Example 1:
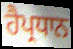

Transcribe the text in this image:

ਹੈਪ੍ਰਧਾਨ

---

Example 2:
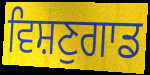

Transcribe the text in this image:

ਵਿਸ਼ਣੁਗਾਡ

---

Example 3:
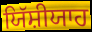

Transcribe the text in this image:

ਯਿੱਸ਼ੀਯਾਹ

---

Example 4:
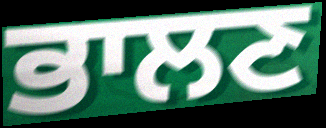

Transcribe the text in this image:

ਭਾਲਣ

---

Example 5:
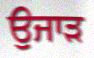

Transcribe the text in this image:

ਉੁਜਾੜ